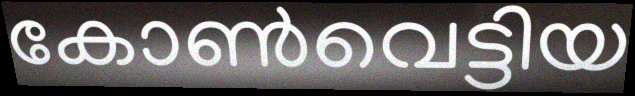
കോൺവെട്ടിയ